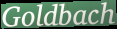
Goldbach